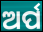
ଅର୍ପ